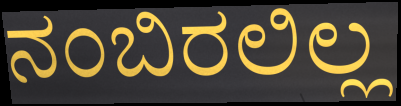
ನಂಬಿರಲಿಲ್ಲ